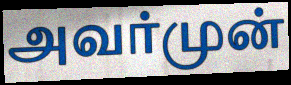
அவர்முன்